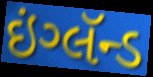
ઇંગ્લૅન્ડ